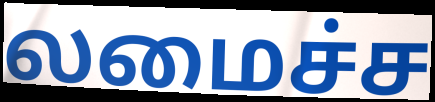
லமைச்ச